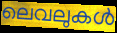
ലെവലുകൾ